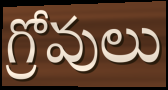
గ్రోవులు